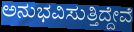
ಅನುಭವಿಸುತ್ತಿದ್ದೇವೆ